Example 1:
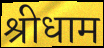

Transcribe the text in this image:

श्रीधाम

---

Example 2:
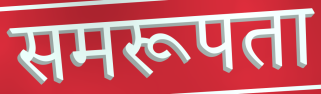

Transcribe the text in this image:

समरूपता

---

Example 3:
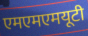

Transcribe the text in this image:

एमएमएमयूटी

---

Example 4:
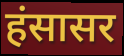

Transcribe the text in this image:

हंसासर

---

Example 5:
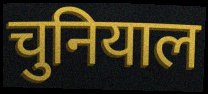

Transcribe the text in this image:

चुनियाल